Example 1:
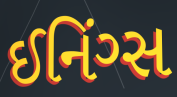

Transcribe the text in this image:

ઈનિંગ્સ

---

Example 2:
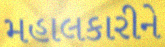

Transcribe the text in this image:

મહાલકારીને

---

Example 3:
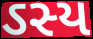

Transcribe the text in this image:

ઽસ્ય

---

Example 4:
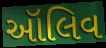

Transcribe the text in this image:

ઑલિવ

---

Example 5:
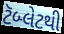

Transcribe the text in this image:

ટૅબ્લેટથી